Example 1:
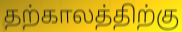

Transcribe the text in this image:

தற்காலத்திற்கு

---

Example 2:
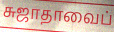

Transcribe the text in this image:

சுஜாதாவைப்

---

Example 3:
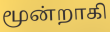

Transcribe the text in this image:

மூன்றாகி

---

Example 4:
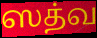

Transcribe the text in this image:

ஸத்வ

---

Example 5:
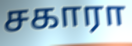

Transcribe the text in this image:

சகாரா